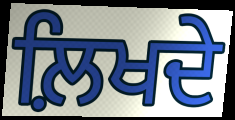
ਲ਼ਿਖਦੇ